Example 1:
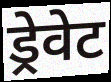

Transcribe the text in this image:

ड्रेवेट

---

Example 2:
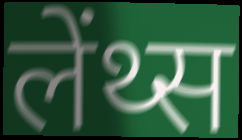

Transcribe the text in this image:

लेंथ्स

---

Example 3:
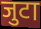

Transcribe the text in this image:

जुटा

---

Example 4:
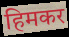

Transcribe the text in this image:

हिमकर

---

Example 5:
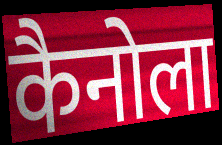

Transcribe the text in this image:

कैनोला